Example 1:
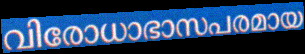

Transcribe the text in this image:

വിരോധാഭാസപരമായ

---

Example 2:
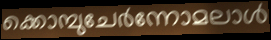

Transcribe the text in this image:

ക്കൊമ്പുചേർന്നോമലാൾ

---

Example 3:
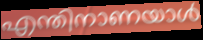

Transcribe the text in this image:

എന്തിനാണയാൾ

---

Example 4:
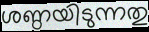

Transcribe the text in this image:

ശണ്ഠയിടുന്നതു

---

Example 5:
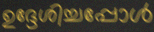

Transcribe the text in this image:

ഉദ്ദേശിച്ചപ്പോൾ